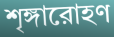
শৃঙ্গারোহণ